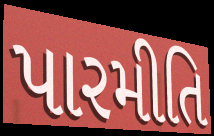
પારમીતિ